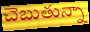
చెబుతున్నా